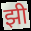
झी